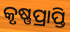
କୃଷ୍ଣପ୍ରାପ୍ତି